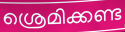
ശ്രെമിക്കണ്ട